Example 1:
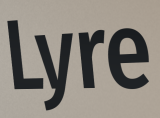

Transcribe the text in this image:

Lyre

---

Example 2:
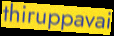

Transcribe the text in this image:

thiruppavai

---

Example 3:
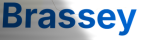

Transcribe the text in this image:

Brassey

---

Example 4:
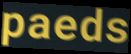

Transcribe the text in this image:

paeds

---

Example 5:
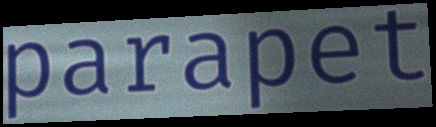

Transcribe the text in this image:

parapet